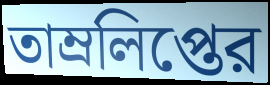
তাম্রলিপ্তের